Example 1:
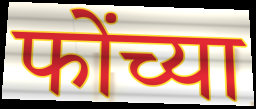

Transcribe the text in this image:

फोंच्या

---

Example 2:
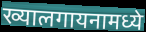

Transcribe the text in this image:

ख्यालगायनामध्ये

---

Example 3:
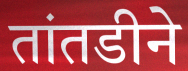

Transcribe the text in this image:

तांतडीने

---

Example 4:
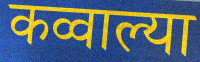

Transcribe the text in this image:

कव्वाल्या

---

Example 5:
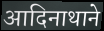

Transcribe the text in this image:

आदिनाथाने